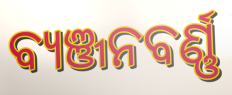
ବ୍ୟଞ୍ଜନବର୍ଣ୍ଣ